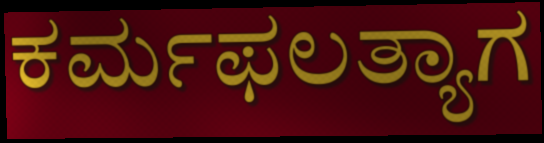
ಕರ್ಮಫಲತ್ಯಾಗ